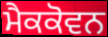
ਮੈਕਕੋਵਨ